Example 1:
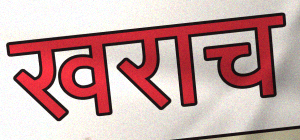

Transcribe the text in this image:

खराच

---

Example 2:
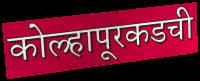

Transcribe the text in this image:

कोल्हापूरकडची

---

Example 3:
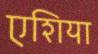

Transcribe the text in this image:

एशिया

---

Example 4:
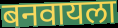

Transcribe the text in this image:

बनवायला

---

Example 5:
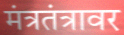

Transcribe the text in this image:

मंत्रतंत्रावर